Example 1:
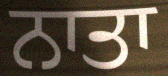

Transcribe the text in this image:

ਨਾਤਾ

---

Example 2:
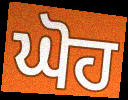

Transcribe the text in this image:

ਘੋਹ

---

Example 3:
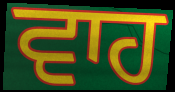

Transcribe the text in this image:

ਵਾਹ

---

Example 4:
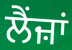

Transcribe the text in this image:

ਲੈਂਜ਼ਾਂ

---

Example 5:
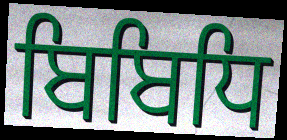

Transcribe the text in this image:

ਬਿਬਿਧਿ